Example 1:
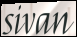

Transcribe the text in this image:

sivan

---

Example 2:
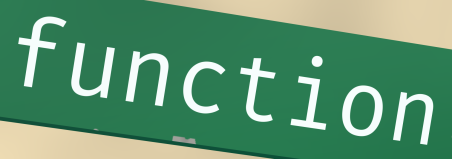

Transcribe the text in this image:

function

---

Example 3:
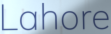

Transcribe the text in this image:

Lahore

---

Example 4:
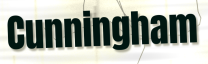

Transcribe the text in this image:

Cunningham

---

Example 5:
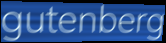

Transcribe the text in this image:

gutenberg